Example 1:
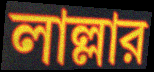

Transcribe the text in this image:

লাল্লার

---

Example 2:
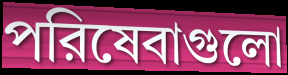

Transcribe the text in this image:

পরিষেবাগুলো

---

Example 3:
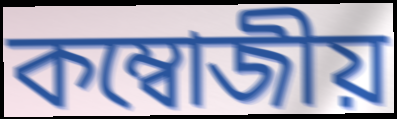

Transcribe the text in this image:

কম্বোজীয়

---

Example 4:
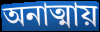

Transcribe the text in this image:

অনাত্মায়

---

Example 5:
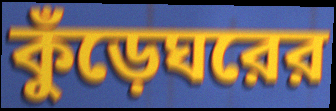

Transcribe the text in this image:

কুঁড়েঘরের